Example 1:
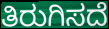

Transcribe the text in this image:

ತಿರುಗಿಸದೆ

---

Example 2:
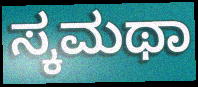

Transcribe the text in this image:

ಸ್ಕಮಥಾ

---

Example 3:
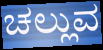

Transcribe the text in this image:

ಚಲ್ಲುವ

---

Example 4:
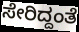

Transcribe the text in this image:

ಸೇರಿದ್ದಂತೆ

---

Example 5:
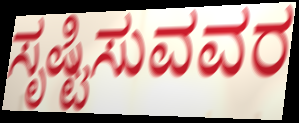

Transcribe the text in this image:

ಸೃಷ್ಟಿಸುವವರ